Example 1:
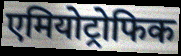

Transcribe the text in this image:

एमियोट्रोफिक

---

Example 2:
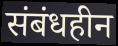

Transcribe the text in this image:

संबंधहीन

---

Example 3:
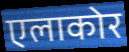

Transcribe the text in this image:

एलाकोर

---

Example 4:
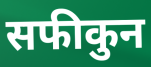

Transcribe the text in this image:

सफीकुन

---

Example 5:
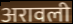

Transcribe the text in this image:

अरावली